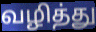
வழித்து